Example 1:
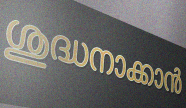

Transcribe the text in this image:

ശുദ്ധനാക്കാൻ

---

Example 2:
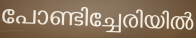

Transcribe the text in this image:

പോണ്ടിച്ചേരിയിൽ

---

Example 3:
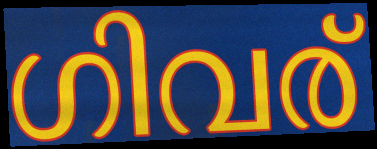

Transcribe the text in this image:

ഗിവര്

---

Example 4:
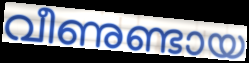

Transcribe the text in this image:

വീണുണ്ടായ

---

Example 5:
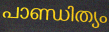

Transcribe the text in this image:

പാണ്ഡിത്യം